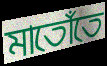
মাতোঁতে